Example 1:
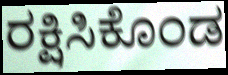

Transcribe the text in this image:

ರಕ್ಷಿಸಿಕೊಂಡ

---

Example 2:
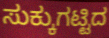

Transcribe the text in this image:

ಸುಕ್ಕುಗಟ್ಟಿದ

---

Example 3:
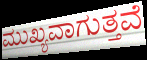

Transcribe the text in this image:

ಮುಖ್ಯವಾಗುತ್ತವೆ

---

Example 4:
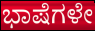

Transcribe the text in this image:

ಭಾಷೆಗಳೇ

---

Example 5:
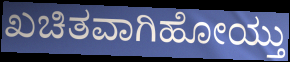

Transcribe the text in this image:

ಖಚಿತವಾಗಿಹೋಯ್ತು